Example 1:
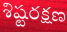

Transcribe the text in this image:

శిష్టరక్షణ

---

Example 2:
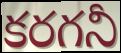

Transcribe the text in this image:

కరగనీ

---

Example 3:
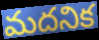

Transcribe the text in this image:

మదనిక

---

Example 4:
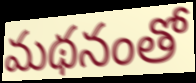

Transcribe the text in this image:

మథనంతో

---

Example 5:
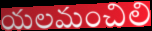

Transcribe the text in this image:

యలమంచిలి